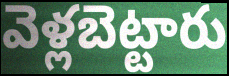
వెళ్లబెట్టారు